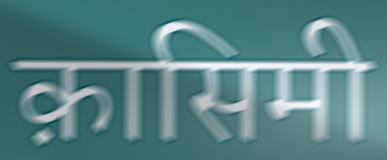
क़ासिमी